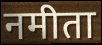
नमीता